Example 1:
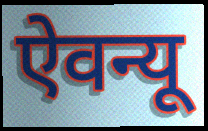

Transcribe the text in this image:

ऐवन्यू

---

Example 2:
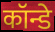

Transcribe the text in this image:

कॉन्डे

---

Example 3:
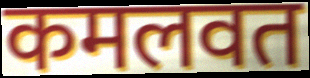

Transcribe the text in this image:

कमलवत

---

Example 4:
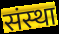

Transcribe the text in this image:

संस्‍था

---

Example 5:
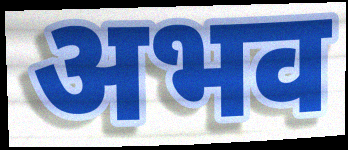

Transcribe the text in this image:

अभव